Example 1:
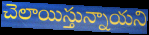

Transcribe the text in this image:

చెలాయిస్తున్నాయని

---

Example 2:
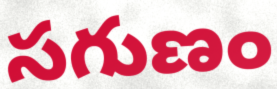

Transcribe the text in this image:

సగుణం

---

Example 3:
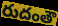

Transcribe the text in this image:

రుదంతౌ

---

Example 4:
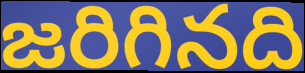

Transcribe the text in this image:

జరిగినది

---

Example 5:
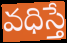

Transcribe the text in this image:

వధిస్తే